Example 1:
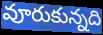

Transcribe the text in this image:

వూరుకున్నది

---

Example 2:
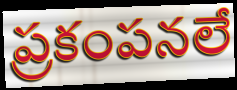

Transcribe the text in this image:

ప్రకంపనలే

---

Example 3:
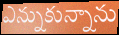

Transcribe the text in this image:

ఎన్నుకున్నాను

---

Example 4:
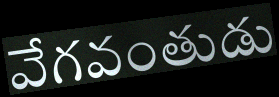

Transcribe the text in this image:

వేగవంతుడు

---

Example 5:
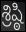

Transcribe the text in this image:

శ్రిష్ఠి